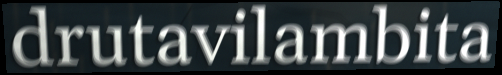
drutavilambita